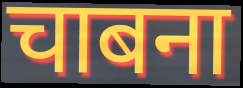
चाबना